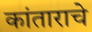
कांताराचे